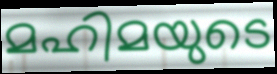
മഹിമയുടെ